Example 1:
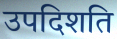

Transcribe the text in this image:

उपदिशति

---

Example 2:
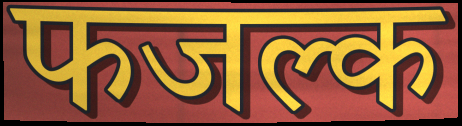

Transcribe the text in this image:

फजल्क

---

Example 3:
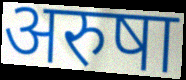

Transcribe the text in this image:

अरुषा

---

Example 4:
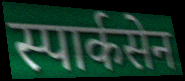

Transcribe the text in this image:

स्पार्कसेन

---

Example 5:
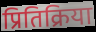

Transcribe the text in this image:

प्रितिक्रिया